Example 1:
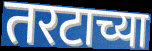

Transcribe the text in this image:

तरटाच्या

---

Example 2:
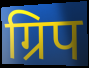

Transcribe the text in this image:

ग्रिप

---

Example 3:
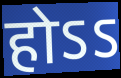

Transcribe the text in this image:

होऽऽ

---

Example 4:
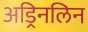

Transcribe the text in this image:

अड्रिनलिन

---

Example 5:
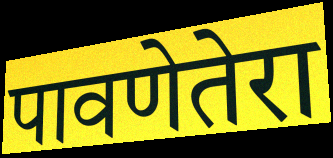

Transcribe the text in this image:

पावणेतेरा